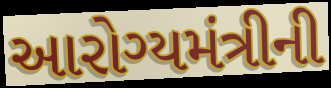
આરોગ્યમંત્રીની